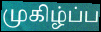
முகிழ்ப்ப